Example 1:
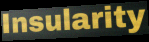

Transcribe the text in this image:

Insularity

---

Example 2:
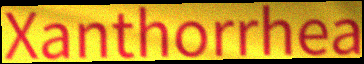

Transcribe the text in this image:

Xanthorrhea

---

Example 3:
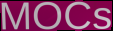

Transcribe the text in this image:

MOCs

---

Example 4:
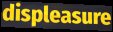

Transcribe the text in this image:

displeasure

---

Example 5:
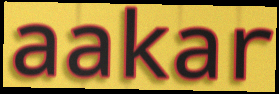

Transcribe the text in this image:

aakar